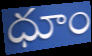
ధూం